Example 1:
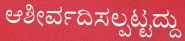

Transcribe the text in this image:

ಆಶೀರ್ವದಿಸಲ್ಪಟ್ಟದ್ದು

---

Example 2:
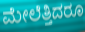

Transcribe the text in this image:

ಮೇಲೆತ್ತಿದರೂ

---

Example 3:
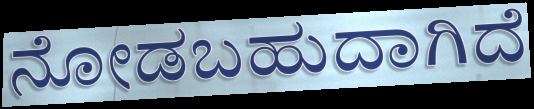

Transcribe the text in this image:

ನೋಡಬಹುದಾಗಿದೆ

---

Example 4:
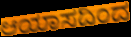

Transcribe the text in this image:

ಆಯಾಸದಿಂದ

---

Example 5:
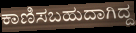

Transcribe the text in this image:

ಕಾಣಿಸಬಹುದಾಗಿದ್ದ